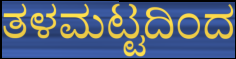
ತಳಮಟ್ಟದಿಂದ